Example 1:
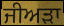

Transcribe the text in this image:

ਜੀਅੜਾ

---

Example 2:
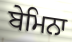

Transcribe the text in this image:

ਬੇਮਿਨਾ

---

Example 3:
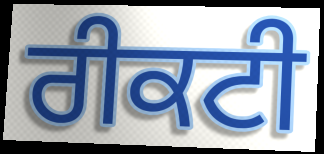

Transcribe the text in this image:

ਰੀਕਟੀ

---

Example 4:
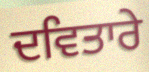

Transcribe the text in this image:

ਦਵਿਤਾਰੇ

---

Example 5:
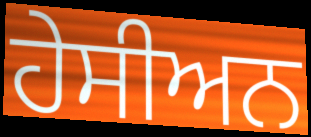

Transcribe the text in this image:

ਹੇਸੀਅਨ